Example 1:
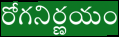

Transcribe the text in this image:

రోగనిర్ణయం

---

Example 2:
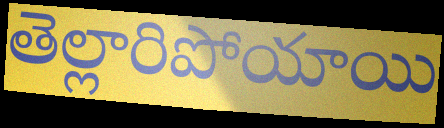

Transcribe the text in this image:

తెల్లారిపోయాయి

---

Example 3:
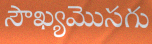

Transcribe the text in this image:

సౌఖ్యమొసగు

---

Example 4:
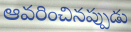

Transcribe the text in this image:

ఆవరించినప్పుడు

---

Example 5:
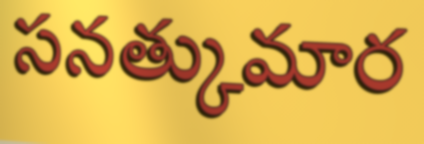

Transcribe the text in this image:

సనత్కుమార